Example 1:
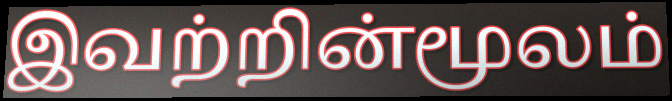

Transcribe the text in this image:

இவற்றின்மூலம்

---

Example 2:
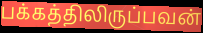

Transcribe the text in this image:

பக்கத்திலிருப்பவன்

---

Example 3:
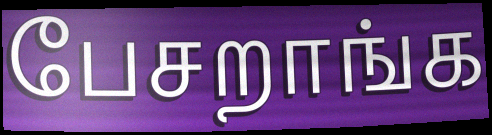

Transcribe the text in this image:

பேசறாங்க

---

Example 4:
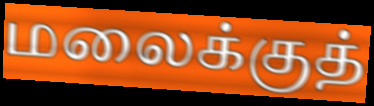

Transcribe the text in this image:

மலைக்குத்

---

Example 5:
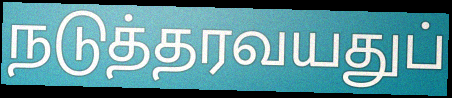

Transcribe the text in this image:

நடுத்தரவயதுப்